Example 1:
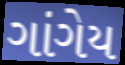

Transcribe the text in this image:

ગાંગેય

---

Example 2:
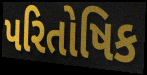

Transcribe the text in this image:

પરિતોષિક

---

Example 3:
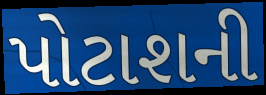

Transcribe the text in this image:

પોટાશની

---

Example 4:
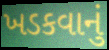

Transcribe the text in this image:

ખડકવાનું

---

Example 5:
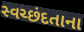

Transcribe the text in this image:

સ્વચ્છંદતાના